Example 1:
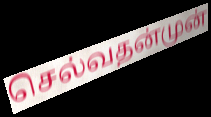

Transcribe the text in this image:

செல்வதன்முன்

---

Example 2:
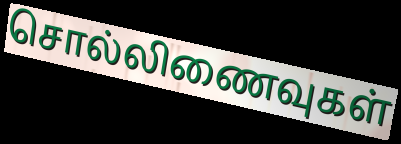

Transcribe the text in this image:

சொல்லிணைவுகள்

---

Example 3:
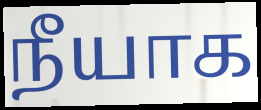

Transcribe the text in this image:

நீயாக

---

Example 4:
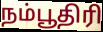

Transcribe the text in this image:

நம்பூதிரி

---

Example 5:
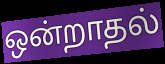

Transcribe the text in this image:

ஒன்றாதல்